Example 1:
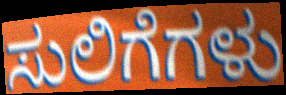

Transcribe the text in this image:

ಸುಲಿಗೆಗಳು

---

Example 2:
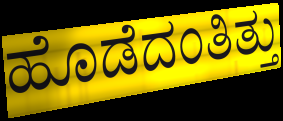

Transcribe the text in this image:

ಹೊಡೆದಂತಿತ್ತು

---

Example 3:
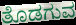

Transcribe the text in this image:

ತೊಡಗುವ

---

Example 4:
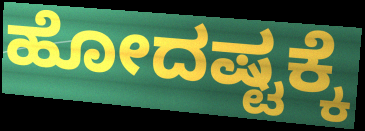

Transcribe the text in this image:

ಹೋದಷ್ಟಕ್ಕೆ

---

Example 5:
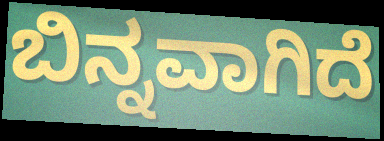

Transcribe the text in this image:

ಬಿನ್ನವಾಗಿದೆ